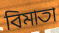
বিমাতা